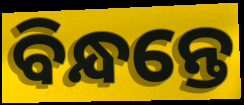
ବିନ୍ଧନ୍ତେ